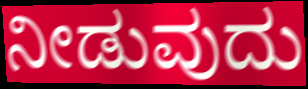
ನೀಡುವುದು